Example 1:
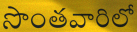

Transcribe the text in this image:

సొంతవారిలో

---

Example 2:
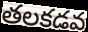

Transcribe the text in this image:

తలకడవ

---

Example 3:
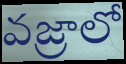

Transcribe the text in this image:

వజ్రాలో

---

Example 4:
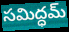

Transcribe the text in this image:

సమిద్ధమ్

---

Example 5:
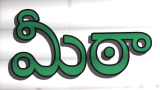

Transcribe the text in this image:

మీఠా